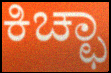
ಕಿಚ್ಛಾ